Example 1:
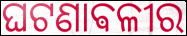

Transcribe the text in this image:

ଘଟଣାଵଳୀର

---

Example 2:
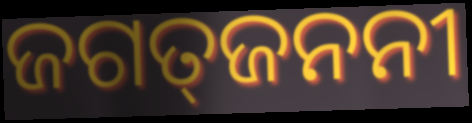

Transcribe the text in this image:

ଜଗତ୍‍ଜନନୀ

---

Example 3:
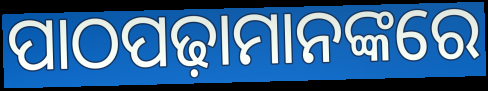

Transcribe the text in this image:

ପାଠପଢ଼ାମାନଙ୍କରେ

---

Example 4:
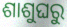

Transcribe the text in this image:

ଶାଶୁଘରୁ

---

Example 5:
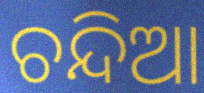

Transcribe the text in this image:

ଚନ୍ଦିଆ